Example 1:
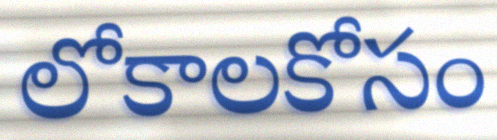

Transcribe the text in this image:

లోకాలకోసం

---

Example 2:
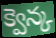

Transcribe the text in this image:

క్వెన్క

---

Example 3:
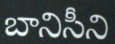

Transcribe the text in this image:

బానిసీని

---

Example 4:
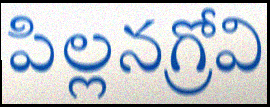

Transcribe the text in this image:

పిల్లనగ్రోవి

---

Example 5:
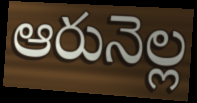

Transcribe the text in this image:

ఆరునెల్ల